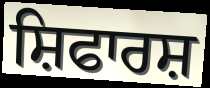
ਸ਼ਿਫਾਰਸ਼